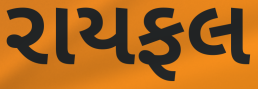
રાયફલ